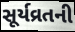
સૂર્યવ્રતની